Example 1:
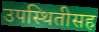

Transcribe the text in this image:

उपस्थितीसह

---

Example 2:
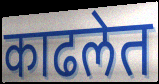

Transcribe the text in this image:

काढलेत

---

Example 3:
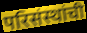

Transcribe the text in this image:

परिसंस्थांची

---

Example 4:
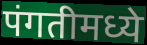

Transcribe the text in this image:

पंगतीमध्ये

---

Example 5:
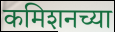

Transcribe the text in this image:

कमिशनच्या